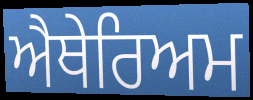
ਐਥੇਰਿਅਮ